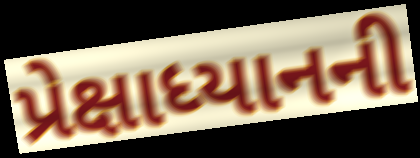
પ્રેક્ષાધ્યાનની